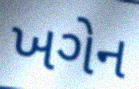
ખગેન